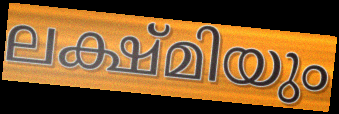
ലക്ഷ്മിയും